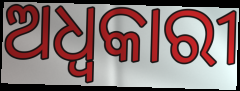
ଅଧ୍ବକାରୀ